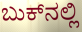
ಬುಕ್‌ನಲ್ಲಿ